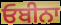
ਓਬੀਨਾ